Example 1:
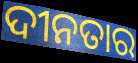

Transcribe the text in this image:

ଦୀନତାର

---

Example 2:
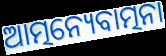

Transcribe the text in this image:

ଆତ୍ମନ୍ୟେବାତ୍ମନା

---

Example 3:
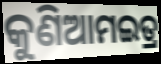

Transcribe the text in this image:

କୁଣିଆମଇତ୍ର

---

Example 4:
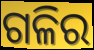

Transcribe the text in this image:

ଗଳିର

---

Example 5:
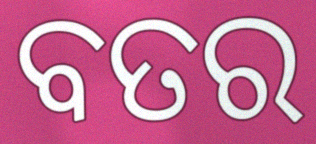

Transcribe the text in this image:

ବତର